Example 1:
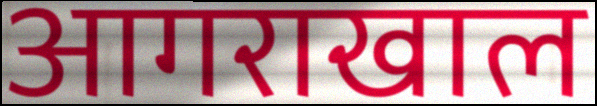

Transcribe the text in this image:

आगराखाल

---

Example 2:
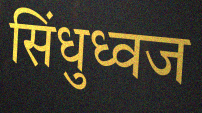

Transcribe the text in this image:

सिंधुध्वज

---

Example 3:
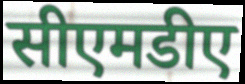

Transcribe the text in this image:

सीएमडीए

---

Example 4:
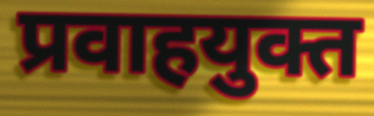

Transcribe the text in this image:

प्रवाहयुक्त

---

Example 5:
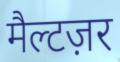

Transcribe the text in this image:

मैल्टज़र